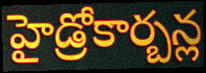
హైడ్రోకార్బన్ల